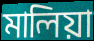
মালিয়া